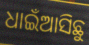
ଧାଇଁଆସିଛୁ